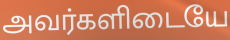
அவர்களிடையே